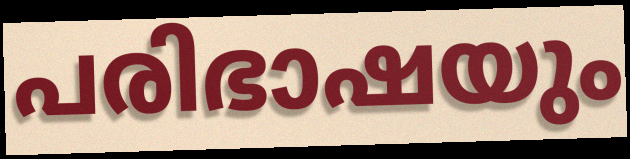
പരിഭാഷയും